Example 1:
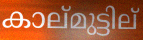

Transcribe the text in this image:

കാല്മുട്ടില്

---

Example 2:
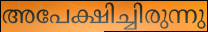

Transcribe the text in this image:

അപേക്ഷിച്ചിരുന്നു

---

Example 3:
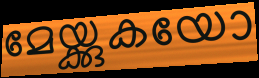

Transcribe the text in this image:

മേയ്ക്കുകയോ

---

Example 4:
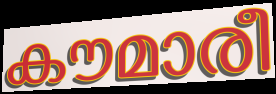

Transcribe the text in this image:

കൗമാരീ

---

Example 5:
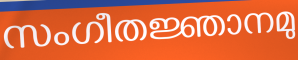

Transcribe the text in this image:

സംഗീതജ്ഞാനമു